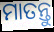
ମାତନ୍ତୁ